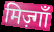
मिज़्गाँ